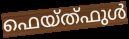
ഫെയ്ത്ഫുൾ